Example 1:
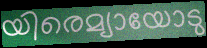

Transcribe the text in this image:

യിരെമ്യായോടു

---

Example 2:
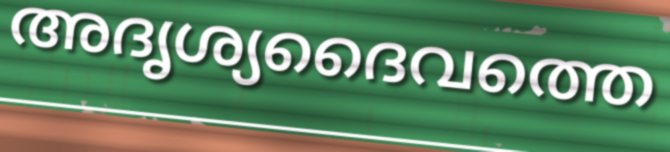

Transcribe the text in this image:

അദൃശ്യദൈവത്തെ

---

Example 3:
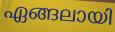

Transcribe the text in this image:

ഏങ്ങലായി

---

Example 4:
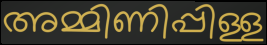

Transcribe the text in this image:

അമ്മിണിപ്പിള്ള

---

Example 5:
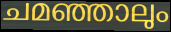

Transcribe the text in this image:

ചമഞ്ഞാലും